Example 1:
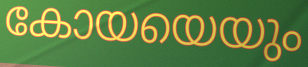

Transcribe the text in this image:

കോയയെയും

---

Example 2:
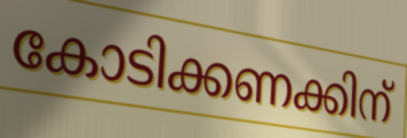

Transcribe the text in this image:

കോടിക്കണക്കിന്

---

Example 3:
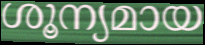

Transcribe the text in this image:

ശൂന്യമായ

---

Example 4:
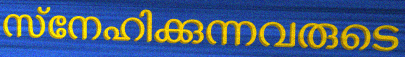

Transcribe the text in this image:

സ്‌നേഹിക്കുന്നവരുടെ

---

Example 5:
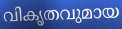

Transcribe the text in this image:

വികൃതവുമായ